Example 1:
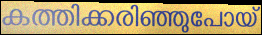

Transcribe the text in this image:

കത്തിക്കരിഞ്ഞുപോയ്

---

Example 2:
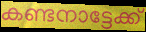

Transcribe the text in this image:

കണ്ടനാട്ടേക്ക്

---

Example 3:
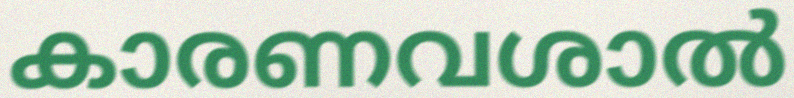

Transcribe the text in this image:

കാരണവശാൽ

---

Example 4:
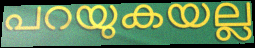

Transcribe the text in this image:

പറയുകയല്ല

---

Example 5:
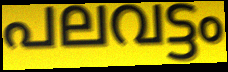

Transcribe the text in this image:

പലവട്ടം